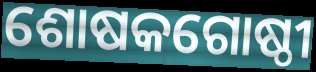
ଶୋଷକଗୋଷ୍ଠୀ